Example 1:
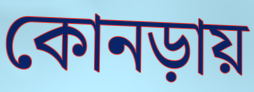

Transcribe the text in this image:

কোনড়ায়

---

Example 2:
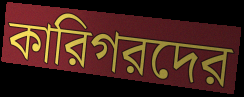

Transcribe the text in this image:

কারিগরদের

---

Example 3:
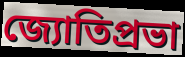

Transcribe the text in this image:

জ্যোতিপ্রভা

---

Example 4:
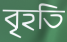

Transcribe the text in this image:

বৃহতি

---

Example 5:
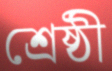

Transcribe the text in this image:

শ্রেষ্ঠী